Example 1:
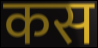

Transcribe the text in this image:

कस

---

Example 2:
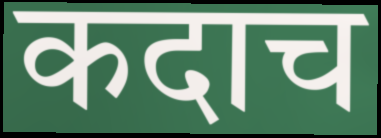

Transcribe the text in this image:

कदाच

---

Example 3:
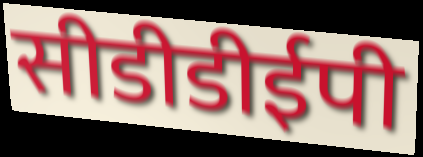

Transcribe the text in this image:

सीडीडीईपी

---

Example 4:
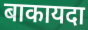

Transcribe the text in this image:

बाकायदा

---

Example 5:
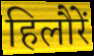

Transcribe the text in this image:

हिलौरें